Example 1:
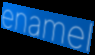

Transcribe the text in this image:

enamel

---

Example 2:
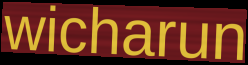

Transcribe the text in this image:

wicharun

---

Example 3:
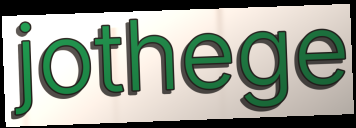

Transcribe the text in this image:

jothege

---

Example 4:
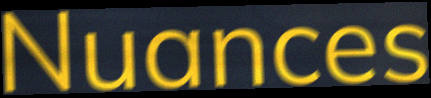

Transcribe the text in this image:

Nuances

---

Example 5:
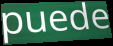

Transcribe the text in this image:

puede